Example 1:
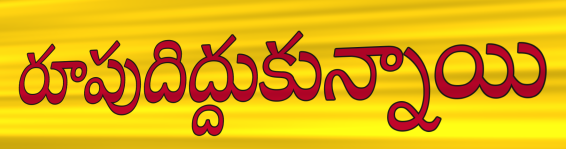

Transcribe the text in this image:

రూపుదిద్దుకున్నాయి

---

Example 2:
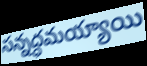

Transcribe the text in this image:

సన్నద్ధమయ్యాయి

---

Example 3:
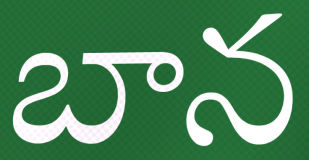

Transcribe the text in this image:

బాన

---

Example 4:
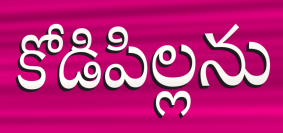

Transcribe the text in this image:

కోడిపిల్లను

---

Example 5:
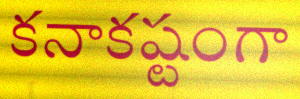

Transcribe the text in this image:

కనాకష్టంగా